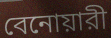
বেনোয়ারী